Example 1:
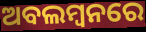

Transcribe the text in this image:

ଅବଲମ୍ବନରେ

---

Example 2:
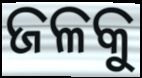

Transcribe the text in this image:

ଜଳକୁ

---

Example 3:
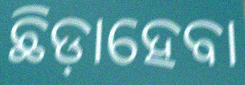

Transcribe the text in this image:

ଛିଡ଼ାହେବା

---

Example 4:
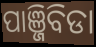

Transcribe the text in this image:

ପାଞ୍ଜିବିଡା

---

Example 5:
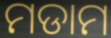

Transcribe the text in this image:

ମଡାମ